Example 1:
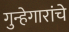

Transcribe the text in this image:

गुन्हेगारांचे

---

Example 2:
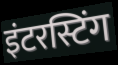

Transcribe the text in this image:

इंटरस्टिंग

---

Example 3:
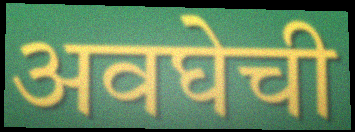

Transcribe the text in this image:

अवघेची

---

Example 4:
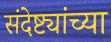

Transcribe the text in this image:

संदेष्ट्यांच्या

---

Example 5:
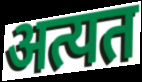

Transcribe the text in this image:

अत्यत